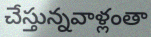
చేస్తున్నవాళ్లంతా